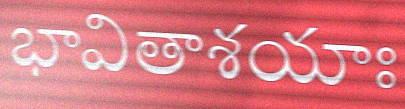
భావితాశయాః